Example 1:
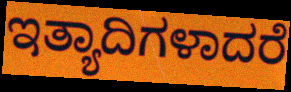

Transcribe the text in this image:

ಇತ್ಯಾದಿಗಳಾದರೆ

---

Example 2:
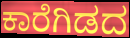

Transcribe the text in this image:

ಕಾರೆಗಿಡದ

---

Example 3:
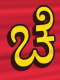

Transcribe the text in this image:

ಚೆ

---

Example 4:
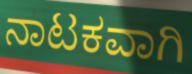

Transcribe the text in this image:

ನಾಟಕವಾಗಿ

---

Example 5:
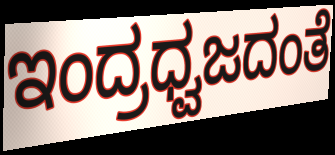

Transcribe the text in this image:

ಇಂದ್ರಧ್ವಜದಂತೆ